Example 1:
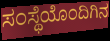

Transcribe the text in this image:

ಸಂಸ್ಥೆಯೊಂದಿಗಿನ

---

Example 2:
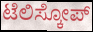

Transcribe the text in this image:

ಟೆಲಿಸ್ಕೋಪ್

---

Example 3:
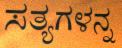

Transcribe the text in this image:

ಸತ್ಯಗಳನ್ನ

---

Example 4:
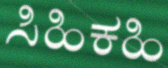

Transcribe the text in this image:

ಸಿಹಿಕಹಿ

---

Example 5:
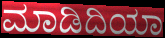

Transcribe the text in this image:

ಮಾಡಿದಿಯಾ